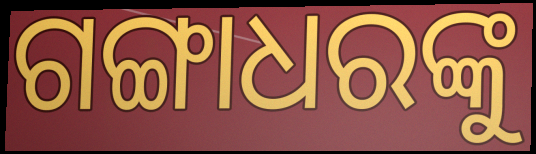
ଗଙ୍ଗାଧରଙ୍କୁ